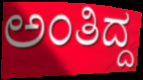
ಅಂತಿದ್ದ